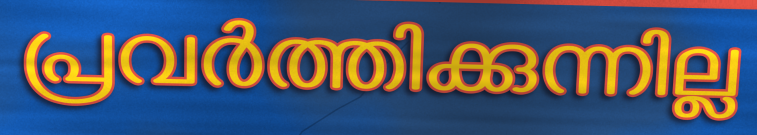
പ്രവർത്തിക്കുന്നില്ല